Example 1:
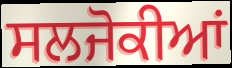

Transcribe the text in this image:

ਸਲਜੋਕੀਆਂ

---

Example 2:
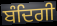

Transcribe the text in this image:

ਬੰਦਿਗੀ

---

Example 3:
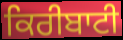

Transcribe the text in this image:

ਕਿਰੀਬਾਟੀ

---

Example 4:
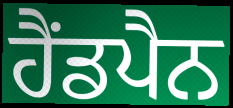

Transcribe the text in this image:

ਹੈਂਡਪੈਨ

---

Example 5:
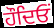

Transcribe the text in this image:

ਹੌਦਿਓਂ